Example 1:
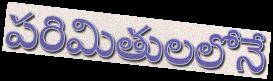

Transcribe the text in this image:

పరిమితులలోనే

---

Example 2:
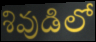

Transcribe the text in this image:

శివుడిలో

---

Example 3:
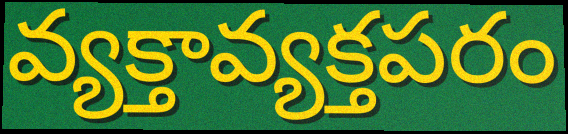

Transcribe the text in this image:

వ్యక్తావ్యక్తపరం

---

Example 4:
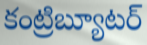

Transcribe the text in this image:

కంట్రిబ్యూటర్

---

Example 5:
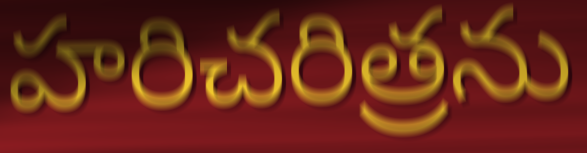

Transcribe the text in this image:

హరిచరిత్రను